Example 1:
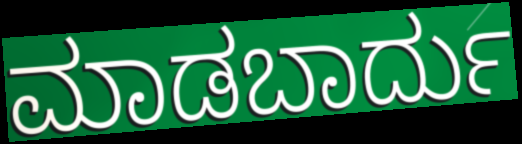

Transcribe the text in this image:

ಮಾಡಬಾರ್ದು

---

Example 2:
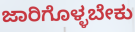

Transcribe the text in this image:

ಜಾರಿಗೊಳ್ಳಬೇಕು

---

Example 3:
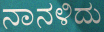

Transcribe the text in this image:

ನಾನಳಿದು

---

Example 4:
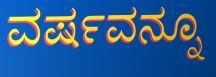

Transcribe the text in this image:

ವರ್ಷವನ್ನೂ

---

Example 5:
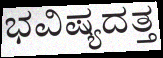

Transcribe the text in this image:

ಭವಿಷ್ಯದತ್ತ